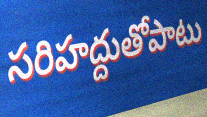
సరిహద్దుతోపాటు